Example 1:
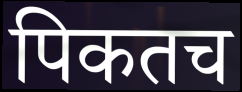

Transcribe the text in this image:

पिकतच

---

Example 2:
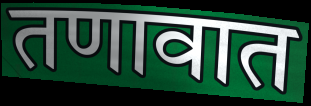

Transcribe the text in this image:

तणावात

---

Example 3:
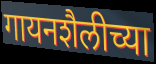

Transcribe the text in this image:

गायनशैलीच्या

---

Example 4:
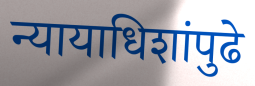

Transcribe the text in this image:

न्यायाधिशांपुढे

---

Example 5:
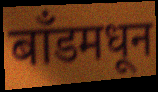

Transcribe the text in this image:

बाँडमधून